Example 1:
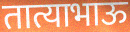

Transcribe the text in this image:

तात्याभाऊ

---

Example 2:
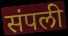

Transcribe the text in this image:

संपली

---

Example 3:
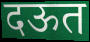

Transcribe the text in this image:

दऊत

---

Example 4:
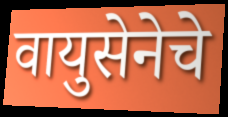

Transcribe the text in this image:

वायुसेनेचे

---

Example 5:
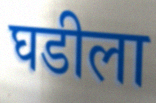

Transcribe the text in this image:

घडीला